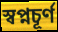
স্বপ্নচূর্ণ